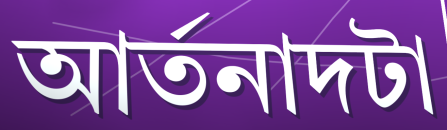
আর্তনাদটা